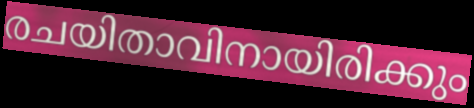
രചയിതാവിനായിരിക്കും